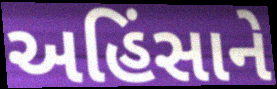
અહિંસાને